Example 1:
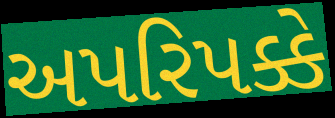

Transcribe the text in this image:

અપરિપક્કે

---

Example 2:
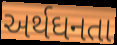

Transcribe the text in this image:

અર્થઘનતા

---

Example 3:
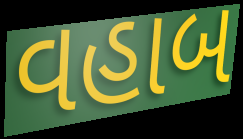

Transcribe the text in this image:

વહાબ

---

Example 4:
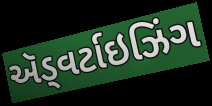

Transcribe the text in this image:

ઍડ્વર્ટાઇઝિંગ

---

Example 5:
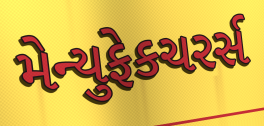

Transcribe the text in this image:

મેન્યુફેકચરર્સ